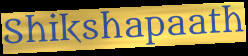
Shikshapaath